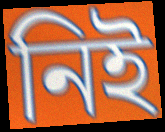
নিই